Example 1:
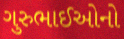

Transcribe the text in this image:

ગુરુભાઈઓનો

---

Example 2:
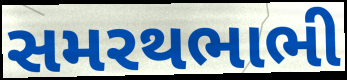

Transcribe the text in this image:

સમરથભાભી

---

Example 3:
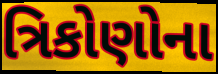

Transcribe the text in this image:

ત્રિકોણોના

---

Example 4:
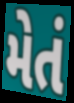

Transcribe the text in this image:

મેતં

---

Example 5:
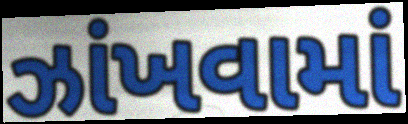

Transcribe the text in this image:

ઝાંખવામાં